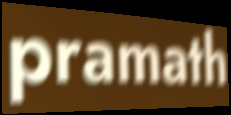
pramath